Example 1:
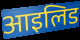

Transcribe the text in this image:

आइलिड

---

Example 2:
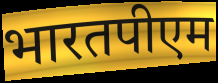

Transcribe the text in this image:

भारतपीएम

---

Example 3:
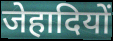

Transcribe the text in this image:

जेहादियों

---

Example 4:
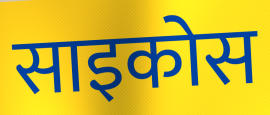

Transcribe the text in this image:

साइकोस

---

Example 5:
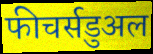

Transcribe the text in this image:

फीचर्सडुअल